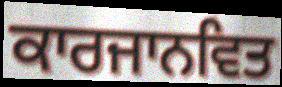
ਕਾਰਜਾਨਵਿਤ